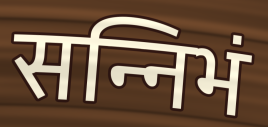
सन्निभं